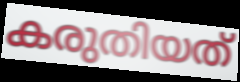
കരുതിയത്